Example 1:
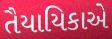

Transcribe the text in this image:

તૈયાયિકાએ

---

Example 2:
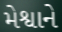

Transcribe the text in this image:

મેશ્વાને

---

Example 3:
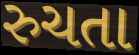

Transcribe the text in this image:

રુચતા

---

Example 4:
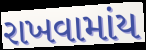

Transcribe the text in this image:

રાખવામાંય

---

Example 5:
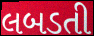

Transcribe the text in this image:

લબડતી